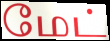
மேட்